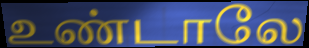
உண்டாலே